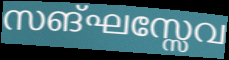
സങ്ഘസ്സേവ